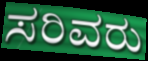
ಸರಿವರು